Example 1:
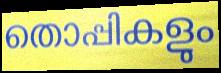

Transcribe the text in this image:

തൊപ്പികളും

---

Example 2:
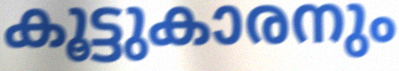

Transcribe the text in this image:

കൂട്ടുകാരനും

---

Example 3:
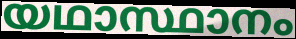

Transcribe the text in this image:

യഥാസ്ഥാനം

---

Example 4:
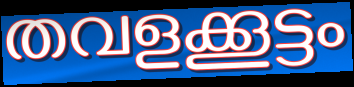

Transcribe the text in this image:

തവളക്കൂട്ടം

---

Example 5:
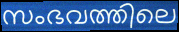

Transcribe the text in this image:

സംഭവത്തിലെ